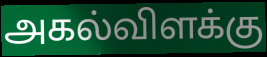
அகல்விளக்கு